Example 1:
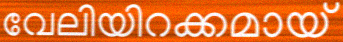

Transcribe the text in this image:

വേലിയിറക്കമായ്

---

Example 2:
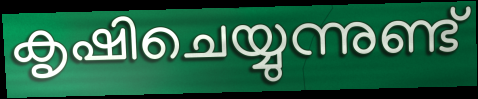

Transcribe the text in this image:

കൃഷിചെയ്യുന്നുണ്ട്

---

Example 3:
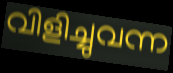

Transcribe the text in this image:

വിളിച്ചുവന്ന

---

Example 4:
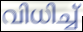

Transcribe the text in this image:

വിധിച്ച്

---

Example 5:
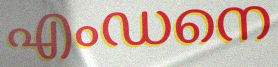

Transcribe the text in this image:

എംഡനെ